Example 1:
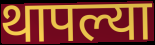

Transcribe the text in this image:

थापल्या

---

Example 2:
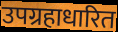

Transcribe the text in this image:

उपग्रहाधारित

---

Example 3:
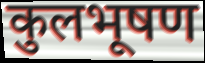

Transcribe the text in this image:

कुलभूषण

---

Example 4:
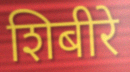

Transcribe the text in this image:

शिबीरे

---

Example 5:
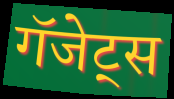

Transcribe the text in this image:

गॅजेट्स